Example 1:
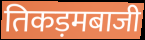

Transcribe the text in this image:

तिकड़मबाजी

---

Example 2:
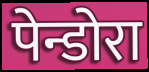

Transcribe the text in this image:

पेन्डोरा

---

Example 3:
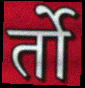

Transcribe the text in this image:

र्तो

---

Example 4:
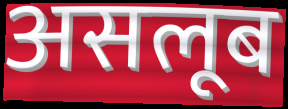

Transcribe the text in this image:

असलूब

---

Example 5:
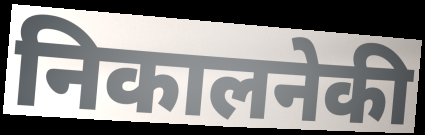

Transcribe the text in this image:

निकालनेकी